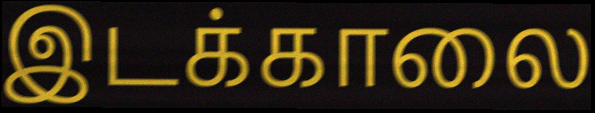
இடக்காலை